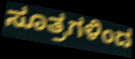
ಸೂತ್ರಗಳಿಂದ